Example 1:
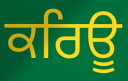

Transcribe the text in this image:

ਕਰਿਊ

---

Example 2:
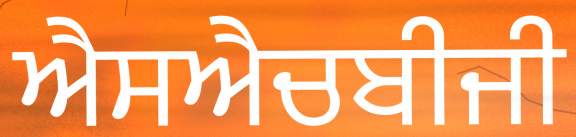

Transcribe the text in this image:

ਐਸਐਚਬੀਜੀ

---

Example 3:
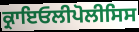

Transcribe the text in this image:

ਕ੍ਰਾਇਓਲੀਪੋਲੀਸਿਸ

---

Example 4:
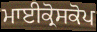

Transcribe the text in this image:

ਮਾਈਕ੍ਰੋਸਕੋਪ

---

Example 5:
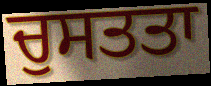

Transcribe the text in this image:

ਚੁਸਤਤਾ